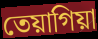
তেয়াগিয়া